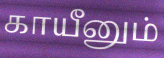
காயீனும்